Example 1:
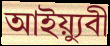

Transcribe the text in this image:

আইয়্যুবী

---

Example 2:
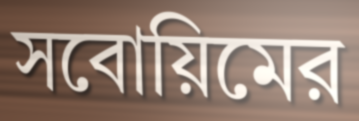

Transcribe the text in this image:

সবোয়িমের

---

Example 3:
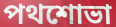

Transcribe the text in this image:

পথশোভা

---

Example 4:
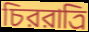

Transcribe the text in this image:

চিররাত্রি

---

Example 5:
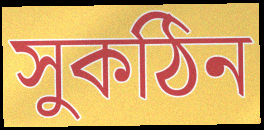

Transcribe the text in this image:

সুকঠিন